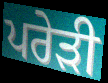
ਪਰੇੜੀ